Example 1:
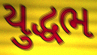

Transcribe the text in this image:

યુદ્ધભ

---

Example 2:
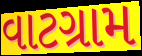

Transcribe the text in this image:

વાટગ્રામ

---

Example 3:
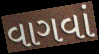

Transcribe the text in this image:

વાગવાં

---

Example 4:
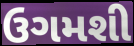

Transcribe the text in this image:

ઉગમશી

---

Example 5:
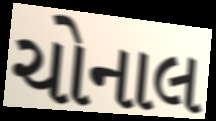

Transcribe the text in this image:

ચોનાલ